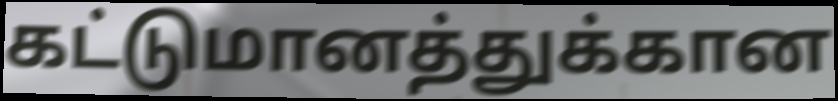
கட்டுமானத்துக்கான